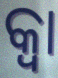
କ୍ଵା